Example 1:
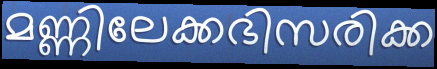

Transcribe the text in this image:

മണ്ണിലേക്കഭിസരിക്ക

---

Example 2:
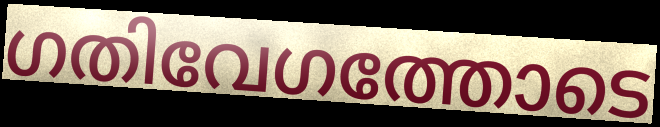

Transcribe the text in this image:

ഗതിവേഗത്തോടെ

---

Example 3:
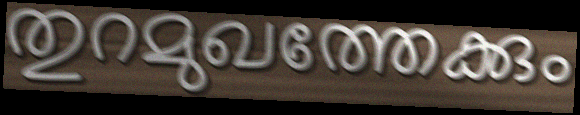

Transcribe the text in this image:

തുറമുഖത്തേക്കും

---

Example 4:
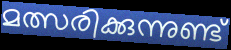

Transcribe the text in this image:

മത്സരിക്കുന്നുണ്ട്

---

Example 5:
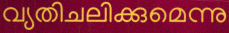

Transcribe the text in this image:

വ്യതിചലിക്കുമെന്നു